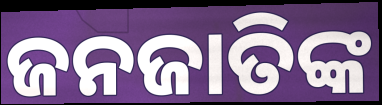
ଜନଜାତିଙ୍କ